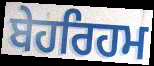
ਬੇਹਰਿਹਮ